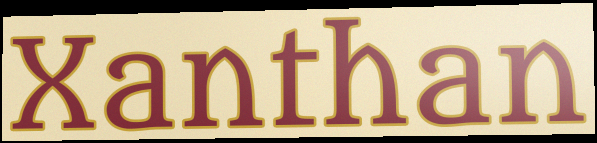
Xanthan